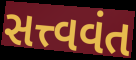
સત્ત્વવંત